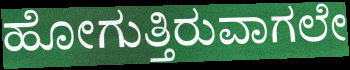
ಹೋಗುತ್ತಿರುವಾಗಲೇ